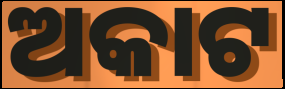
ଅକାଟ